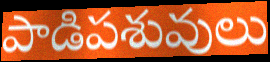
పాడిపశువులు